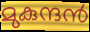
മുകുന്ദൻ